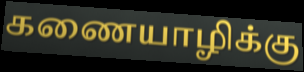
கணையாழிக்கு